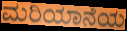
ಮರಿಯಾನೆಯ